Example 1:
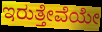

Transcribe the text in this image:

ಇರುತ್ತೇವೆಯೇ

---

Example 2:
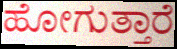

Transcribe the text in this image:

ಹೋಗುತ್ತಾರೆ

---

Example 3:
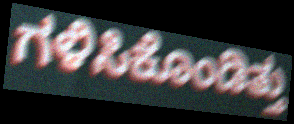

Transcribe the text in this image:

ಗಳಿಸಿಕೊಂಡಿತ್ತು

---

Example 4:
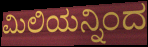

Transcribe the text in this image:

ಮಿಲಿಯನ್ನಿಂದ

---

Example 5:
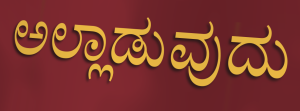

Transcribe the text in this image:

ಅಲ್ಲಾಡುವುದು